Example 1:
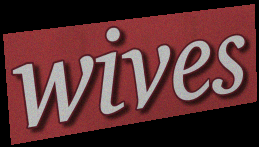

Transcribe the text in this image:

wives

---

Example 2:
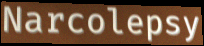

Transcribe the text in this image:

Narcolepsy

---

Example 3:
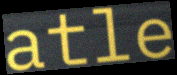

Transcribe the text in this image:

atle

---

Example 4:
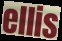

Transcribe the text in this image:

ellis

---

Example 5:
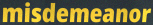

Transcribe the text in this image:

misdemeanor